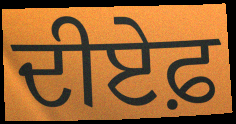
ਦੀਏਫ਼